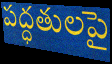
పద్ధతులపై